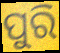
ପୁରି